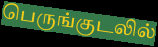
பெருங்குடலில்